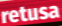
retusa